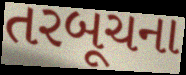
તરબૂચના